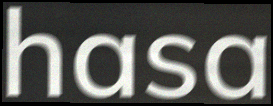
hasa